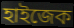
হাইজেক